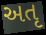
અતૃ